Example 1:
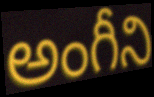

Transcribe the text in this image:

అంగీని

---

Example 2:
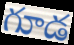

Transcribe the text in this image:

గూడ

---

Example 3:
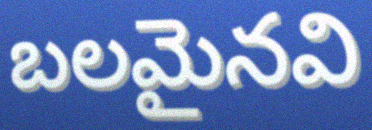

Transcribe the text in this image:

బలమైనవి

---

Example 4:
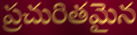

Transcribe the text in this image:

ప్రచురితమైన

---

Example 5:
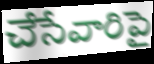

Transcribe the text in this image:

చేసేవారిపై